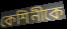
কেশিনীকে